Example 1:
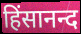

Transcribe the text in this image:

हिंसानन्द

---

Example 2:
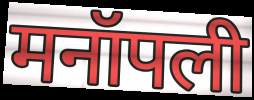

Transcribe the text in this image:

मनॉपली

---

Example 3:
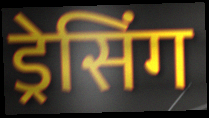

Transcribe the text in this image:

ड्रेसिंग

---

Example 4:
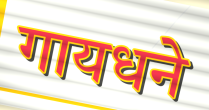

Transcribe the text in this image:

गायधने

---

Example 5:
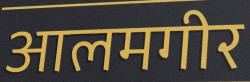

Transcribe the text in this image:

आलमगीर